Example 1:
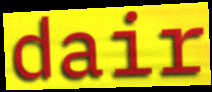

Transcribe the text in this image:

dair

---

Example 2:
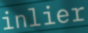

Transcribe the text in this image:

inlier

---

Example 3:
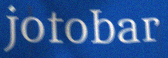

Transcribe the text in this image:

jotobar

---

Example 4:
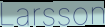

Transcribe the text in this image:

Larsson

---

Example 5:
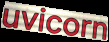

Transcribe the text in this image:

uvicorn